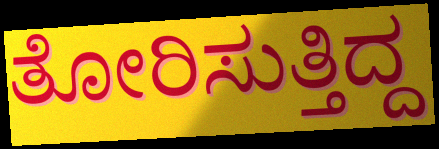
ತೋರಿಸುತ್ತಿದ್ದ